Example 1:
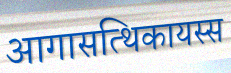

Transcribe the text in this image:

आगासत्थिकायस्स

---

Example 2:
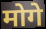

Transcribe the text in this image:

मोगे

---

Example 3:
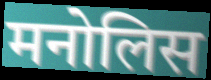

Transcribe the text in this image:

मनोलिस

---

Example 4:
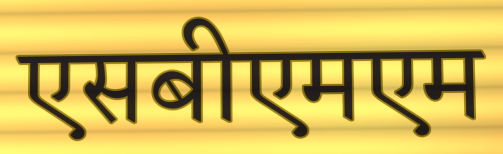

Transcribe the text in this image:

एसबीएमएम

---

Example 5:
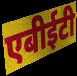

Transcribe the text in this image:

एबीईटी